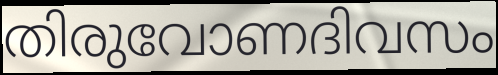
തിരുവോണദിവസം